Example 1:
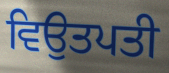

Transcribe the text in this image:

ਵਿਉਤਪਤੀ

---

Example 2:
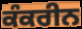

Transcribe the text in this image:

ਕੰਕਰੀਨ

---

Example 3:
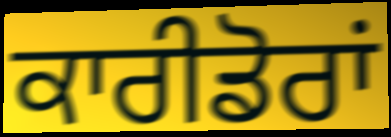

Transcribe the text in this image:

ਕਾਰੀਡੋਰਾਂ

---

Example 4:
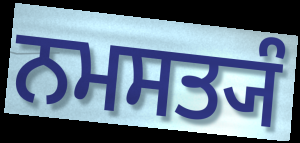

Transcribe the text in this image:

ਨਮਸਤ੍ਯੰ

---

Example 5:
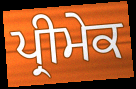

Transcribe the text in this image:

ਪ੍ਰੀਮੇਕ